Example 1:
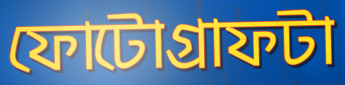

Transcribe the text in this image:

ফোটোগ্রাফটা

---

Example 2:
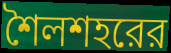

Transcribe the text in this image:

শৈলশহরের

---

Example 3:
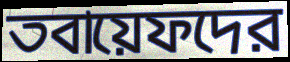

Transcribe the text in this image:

তবায়েফদের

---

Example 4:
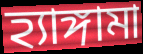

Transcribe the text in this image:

হ্যাঙ্গামা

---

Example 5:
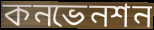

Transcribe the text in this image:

কনভেনশন